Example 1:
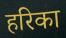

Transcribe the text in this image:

हरिका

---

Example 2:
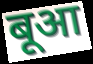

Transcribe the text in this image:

बूआ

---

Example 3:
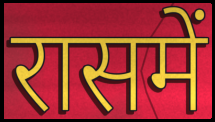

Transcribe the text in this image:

रासमें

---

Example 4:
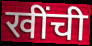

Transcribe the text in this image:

खींची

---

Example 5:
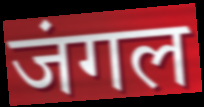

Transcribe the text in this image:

जंगल